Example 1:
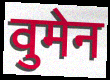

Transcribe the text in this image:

वुमेन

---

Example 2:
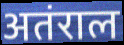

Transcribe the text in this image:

अतंराल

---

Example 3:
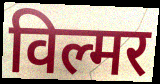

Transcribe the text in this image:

विल्मर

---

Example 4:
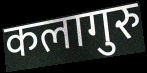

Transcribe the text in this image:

कलागुरु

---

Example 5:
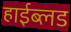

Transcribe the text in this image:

हाईब्लड